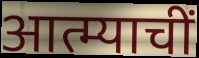
आत्म्याचीं